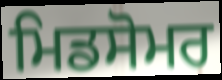
ਮਿਡਸੋਮਰ